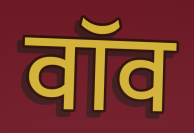
वॉव